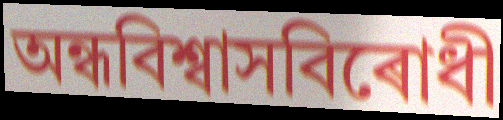
অন্ধবিশ্বাসবিৰোধী